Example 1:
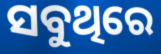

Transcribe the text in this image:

ସବୁଥିରେ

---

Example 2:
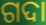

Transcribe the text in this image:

ଗଦା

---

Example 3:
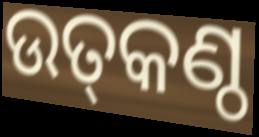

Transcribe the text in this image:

ଉତ୍‌କଣ୍ଠ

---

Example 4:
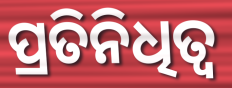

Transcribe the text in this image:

ପ୍ରତିନିଧିତ୍ବ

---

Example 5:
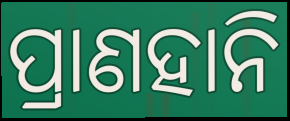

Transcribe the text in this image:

ପ୍ରାଣହାନି